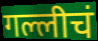
गल्लीचं